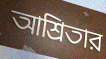
আশ্রিতার